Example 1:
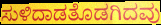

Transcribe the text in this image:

ಸುಳಿದಾಡತೊಡಗಿದವು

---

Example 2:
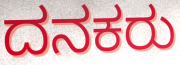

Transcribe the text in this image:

ದನಕರು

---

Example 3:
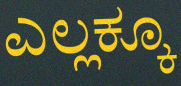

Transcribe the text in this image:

ಎಲ್ಲಕ್ಕೂ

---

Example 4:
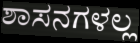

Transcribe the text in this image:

ಶಾಸನಗಳಲ್ಲ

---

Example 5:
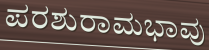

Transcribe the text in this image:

ಪರಶುರಾಮಭಾವು